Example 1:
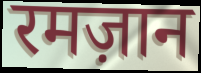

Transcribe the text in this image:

रमज़ान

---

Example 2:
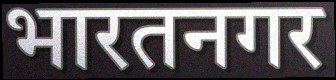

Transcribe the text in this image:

भारतनगर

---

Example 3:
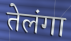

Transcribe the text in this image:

तेलंगा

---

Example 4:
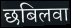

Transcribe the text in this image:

छबिलवा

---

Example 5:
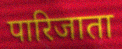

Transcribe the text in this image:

पारिजाता